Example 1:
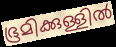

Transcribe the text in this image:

ഭൂമിക്കുള്ളിൽ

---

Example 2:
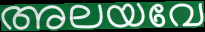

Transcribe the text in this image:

അലയവേ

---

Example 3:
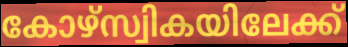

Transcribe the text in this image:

കോഴ്സ്വികയിലേക്ക്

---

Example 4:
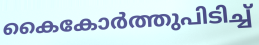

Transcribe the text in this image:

കൈകോർത്തുപിടിച്ച്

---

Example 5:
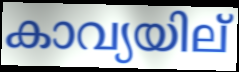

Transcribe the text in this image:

കാവ്യയില്